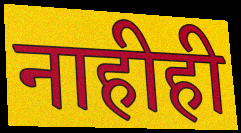
नाहीही